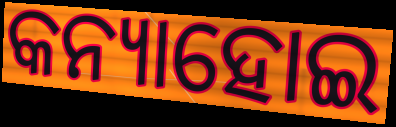
କନ୍ୟାହୋଇ